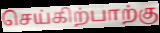
செய்கிற்பாற்கு